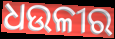
ଧଉଳୀର